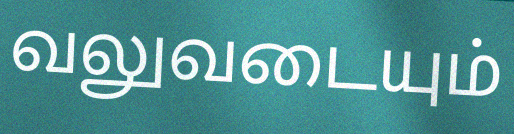
வலுவடையும்